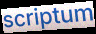
scriptum